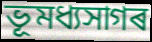
ভূমধ্যসাগৰ